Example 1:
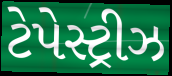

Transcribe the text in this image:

ટેપેસ્ટ્રીઝ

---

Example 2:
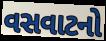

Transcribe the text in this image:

વસવાટનો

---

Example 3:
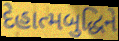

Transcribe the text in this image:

દેહાત્મબુદ્ધિને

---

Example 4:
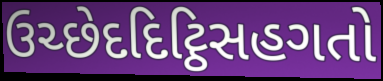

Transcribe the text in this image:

ઉચ્છેદદિટ્ઠિસહગતો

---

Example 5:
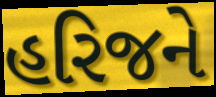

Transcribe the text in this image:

હરિજને